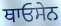
ਥਾਓਸੇਨ